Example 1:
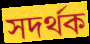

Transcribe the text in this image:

সদর্থক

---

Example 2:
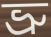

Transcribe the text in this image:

ভ্রু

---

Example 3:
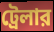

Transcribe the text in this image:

ট্রেলার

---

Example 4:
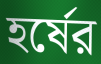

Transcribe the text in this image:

হর্ষের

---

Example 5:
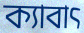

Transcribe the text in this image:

ক্যাবাৎ